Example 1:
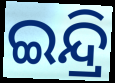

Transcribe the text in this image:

ଇନ୍ଦ୍ରି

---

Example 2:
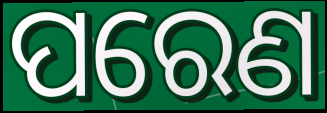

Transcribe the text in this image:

ପରେଣ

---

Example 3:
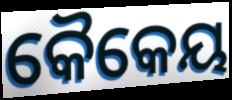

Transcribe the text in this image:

କୈକେୟ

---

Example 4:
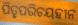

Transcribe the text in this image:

ପିତୃପରିଚୟହୀନ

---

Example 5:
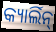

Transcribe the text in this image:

କ୍ୟାର୍ଲିନ୍